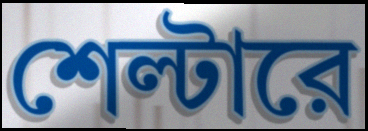
শেল্টারে